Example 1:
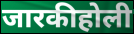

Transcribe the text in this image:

जारकीहोली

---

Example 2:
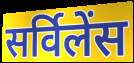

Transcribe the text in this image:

सर्विलेंस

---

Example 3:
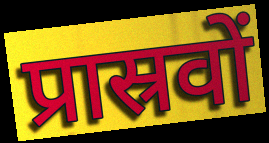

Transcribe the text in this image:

प्रास्रवों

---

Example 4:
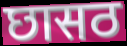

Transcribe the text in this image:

छासठ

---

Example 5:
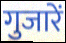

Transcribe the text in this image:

गुजारें